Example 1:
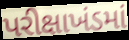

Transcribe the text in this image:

પરીક્ષાખંડમાં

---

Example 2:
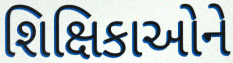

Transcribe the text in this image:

શિક્ષિકાઓને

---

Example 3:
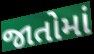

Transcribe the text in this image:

જાતોમાં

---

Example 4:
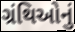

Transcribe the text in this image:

ગ્રંથિઓનું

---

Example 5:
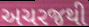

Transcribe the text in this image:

અચરજથી